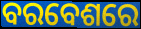
ବରବେଶରେ